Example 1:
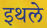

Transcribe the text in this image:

इथले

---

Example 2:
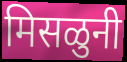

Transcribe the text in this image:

मिसळुनी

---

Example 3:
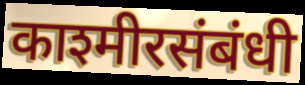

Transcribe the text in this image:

काश्मीरसंबंधी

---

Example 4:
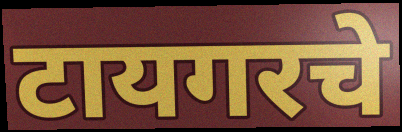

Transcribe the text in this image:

टायगरचे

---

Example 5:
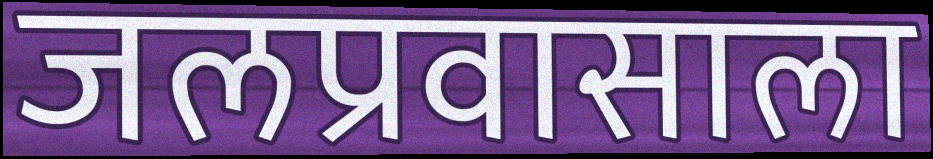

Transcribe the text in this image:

जलप्रवासाला